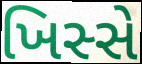
ખિસ્સે